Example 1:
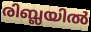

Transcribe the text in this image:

രിബ്ലയിൽ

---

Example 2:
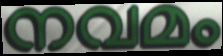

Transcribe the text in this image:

നവമം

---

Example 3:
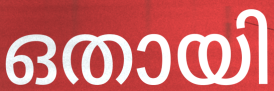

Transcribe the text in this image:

ഒതായി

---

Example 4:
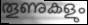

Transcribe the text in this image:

തൂണുകളും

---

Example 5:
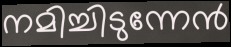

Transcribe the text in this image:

നമിച്ചിടുന്നേൻ